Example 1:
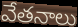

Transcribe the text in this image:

వేతనాలు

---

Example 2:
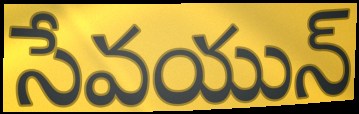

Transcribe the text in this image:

సేవయున్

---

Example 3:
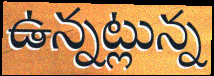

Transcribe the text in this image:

ఉన్నట్లున్న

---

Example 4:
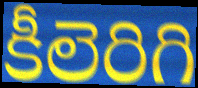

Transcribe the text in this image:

కీలెరిగి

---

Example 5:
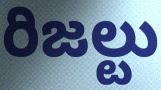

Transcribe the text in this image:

రిజల్టు